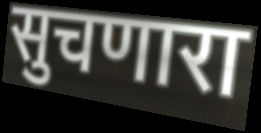
सुचणारा